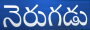
నెరుగడు